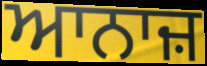
ਆਨਾਜ਼